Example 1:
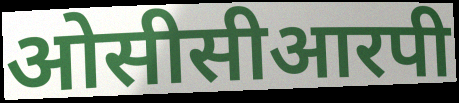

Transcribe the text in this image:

ओसीसीआरपी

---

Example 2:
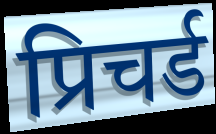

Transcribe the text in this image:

प्रिचर्ड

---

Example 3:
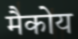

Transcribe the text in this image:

मैकोय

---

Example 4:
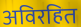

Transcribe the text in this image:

अविरहित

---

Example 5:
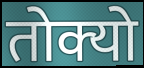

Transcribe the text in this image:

तोक्‍यो